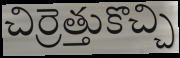
చిర్రెత్తుకొచ్చి